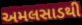
અમલસાડથી